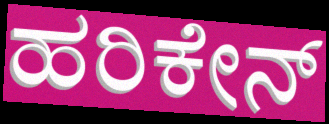
ಹರಿಕೇನ್